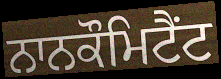
ਨਾਨਕੌਮਿਟੈਂਟ